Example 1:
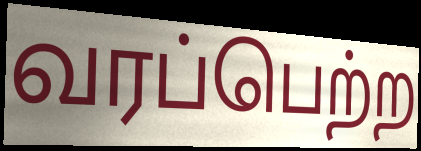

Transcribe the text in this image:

வரப்பெற்ற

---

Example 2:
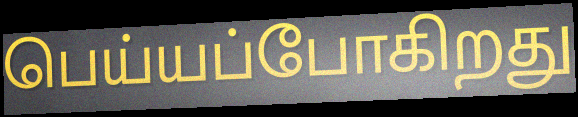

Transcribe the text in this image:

பெய்யப்போகிறது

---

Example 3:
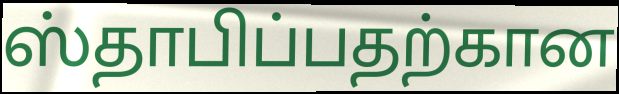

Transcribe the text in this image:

ஸ்தாபிப்பதற்கான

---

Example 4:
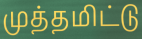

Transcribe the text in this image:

முத்தமிட்டு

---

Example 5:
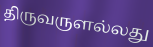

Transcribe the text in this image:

திருவருளல்லது